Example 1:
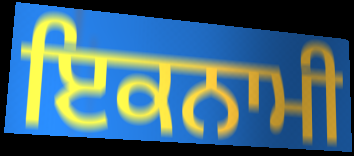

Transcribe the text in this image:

ਇਕਨਾਮੀ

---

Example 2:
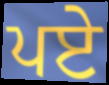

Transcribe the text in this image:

ਪਏ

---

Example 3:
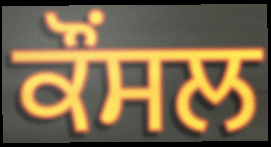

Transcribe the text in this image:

ਕੌਂਸਲ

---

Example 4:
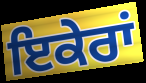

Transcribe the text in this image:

ਇਕੇਰਾਂ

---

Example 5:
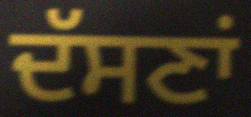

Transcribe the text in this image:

ਦੱਸਣਾਂ